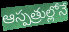
ఆస్పత్రుల్లోనే